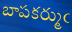
బాపకర్ముఁ